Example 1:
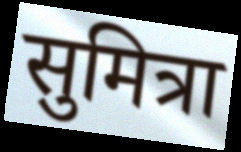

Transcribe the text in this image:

सुमित्रा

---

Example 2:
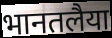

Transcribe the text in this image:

भानतलैया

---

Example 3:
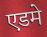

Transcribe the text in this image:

एडमे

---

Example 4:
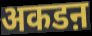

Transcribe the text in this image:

अकडऩ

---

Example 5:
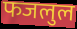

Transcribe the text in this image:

फजलुल